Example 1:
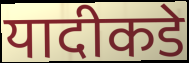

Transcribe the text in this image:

यादीकडे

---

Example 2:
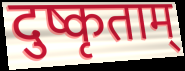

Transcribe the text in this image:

दुष्कृताम्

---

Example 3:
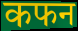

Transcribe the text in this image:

कफन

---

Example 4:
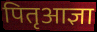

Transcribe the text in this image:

पितृआज्ञा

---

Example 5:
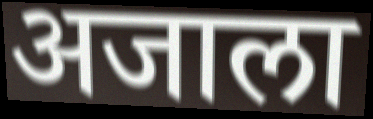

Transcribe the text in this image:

अजाला